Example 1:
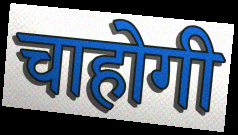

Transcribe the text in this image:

चाहोगी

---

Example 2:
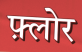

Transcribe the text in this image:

फ़्लोर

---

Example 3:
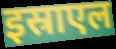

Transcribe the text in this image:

इस्राएल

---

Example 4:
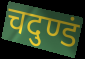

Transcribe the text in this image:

चदुण्डं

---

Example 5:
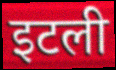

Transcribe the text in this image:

इटली